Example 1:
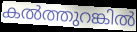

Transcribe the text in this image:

കൽത്തുറങ്കിൽ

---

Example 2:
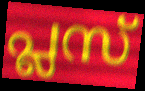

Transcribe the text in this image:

പ്ലസ്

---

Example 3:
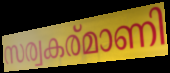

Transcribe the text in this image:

സര്വകര്മാണി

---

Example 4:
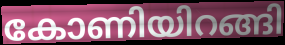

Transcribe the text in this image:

കോണിയിറങ്ങി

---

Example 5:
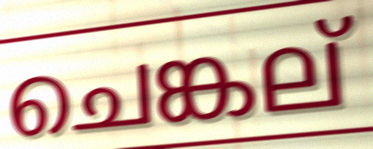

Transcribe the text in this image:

ചെങ്കല്